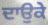
ਦਾਉਕੇ